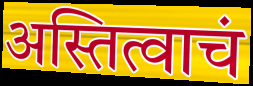
अस्तित्वाचं